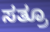
ಸತ್ರೂ